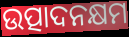
ଉତ୍ପାଦନକ୍ଷମ